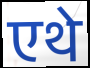
एथे